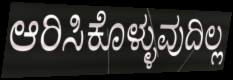
ಆರಿಸಿಕೊಳ್ಳುವುದಿಲ್ಲ